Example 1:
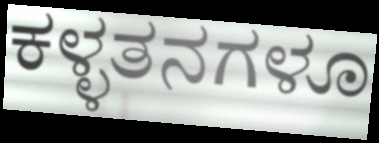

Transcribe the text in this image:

ಕಳ್ಳತನಗಳೂ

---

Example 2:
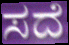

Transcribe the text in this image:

ಸದೆ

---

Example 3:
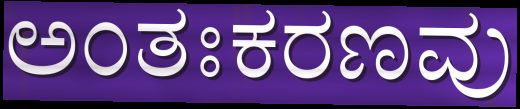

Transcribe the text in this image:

ಅಂತಃಕರಣವು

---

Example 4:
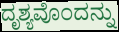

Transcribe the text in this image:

ದೃಶ್ಯವೊಂದನ್ನು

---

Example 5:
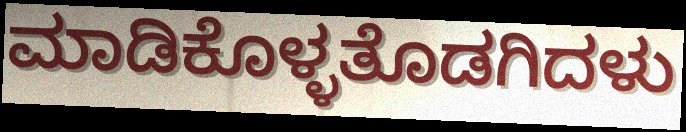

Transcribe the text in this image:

ಮಾಡಿಕೊಳ್ಳತೊಡಗಿದಳು